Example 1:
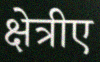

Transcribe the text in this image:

क्षेत्रीए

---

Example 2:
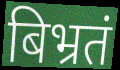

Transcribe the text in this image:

बिभ्रतं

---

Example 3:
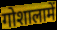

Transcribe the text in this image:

गोशालामें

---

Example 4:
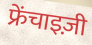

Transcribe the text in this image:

फ्रेंचाइज़ी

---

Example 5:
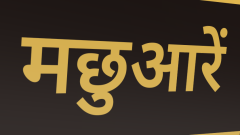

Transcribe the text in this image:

मछुआरें